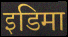
इडिमा